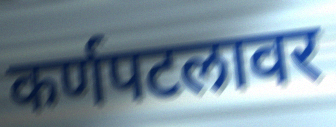
कर्णपटलावर